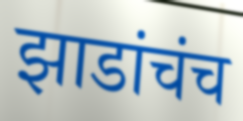
झाडांचंच